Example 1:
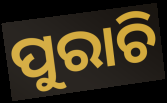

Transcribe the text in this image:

ପୁରାଚି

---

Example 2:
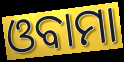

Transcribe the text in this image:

ଓବାମା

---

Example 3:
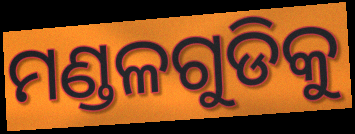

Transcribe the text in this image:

ମଣ୍ଡଳଗୁଡିକୁ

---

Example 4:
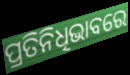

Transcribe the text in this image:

ପ୍ରତିନିଧିଭାବରେ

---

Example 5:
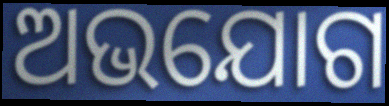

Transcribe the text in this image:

ଅଭଯୋଗ